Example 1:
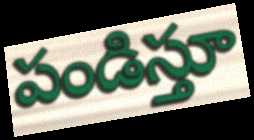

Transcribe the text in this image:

పండిస్తూ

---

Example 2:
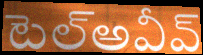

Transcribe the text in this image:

టెల్అవీవ్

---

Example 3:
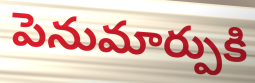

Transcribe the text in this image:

పెనుమార్పుకి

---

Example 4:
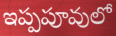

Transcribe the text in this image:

ఇప్పపూవులో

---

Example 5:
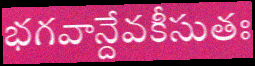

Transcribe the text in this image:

భగవాన్దేవకీసుతః